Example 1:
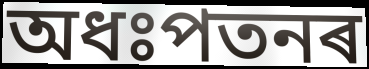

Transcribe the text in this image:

অধঃপতনৰ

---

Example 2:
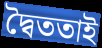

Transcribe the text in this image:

দ্বৈততাই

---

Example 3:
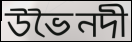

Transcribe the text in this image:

উভৈনদী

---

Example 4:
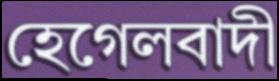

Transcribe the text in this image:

হেগেলবাদী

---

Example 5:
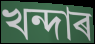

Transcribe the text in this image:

খন্দাৰ